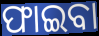
ଫାଇବା